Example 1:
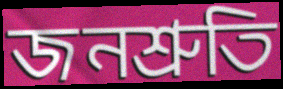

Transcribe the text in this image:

জনশ্ৰুতি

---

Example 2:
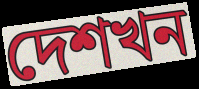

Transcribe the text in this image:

দেশখন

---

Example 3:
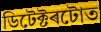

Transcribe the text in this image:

ডিটেক্টৰটোত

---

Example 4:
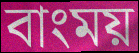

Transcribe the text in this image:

বাংময়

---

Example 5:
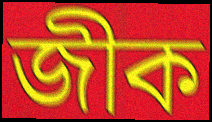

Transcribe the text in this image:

জীক